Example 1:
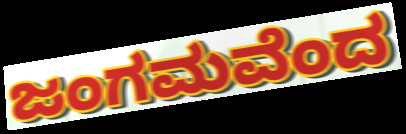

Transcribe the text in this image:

ಜಂಗಮವೆಂದ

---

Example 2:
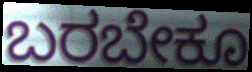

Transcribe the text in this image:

ಬರಬೇಕೂ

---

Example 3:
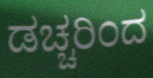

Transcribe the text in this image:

ಡಚ್ಚರಿಂದ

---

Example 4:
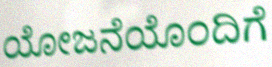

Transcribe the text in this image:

ಯೋಜನೆಯೊಂದಿಗೆ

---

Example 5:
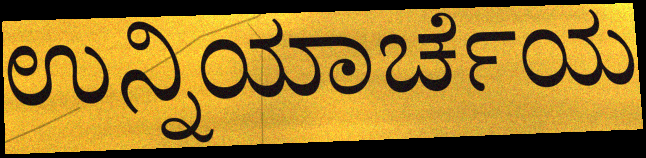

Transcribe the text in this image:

ಉನ್ನಿಯಾರ್ಚೆಯ